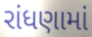
રાંધણામાં